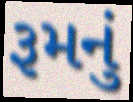
રૂમનું